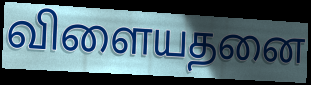
விளையதனை